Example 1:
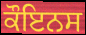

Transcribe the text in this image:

ਕੌਇਨਸ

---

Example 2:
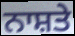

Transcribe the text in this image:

ਨਾਸ਼ਤੇ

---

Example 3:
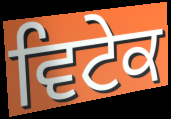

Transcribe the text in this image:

ਵਿਟੇਕ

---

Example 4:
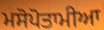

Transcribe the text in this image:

ਮਸੋਪੋਤਾਮੀਆ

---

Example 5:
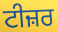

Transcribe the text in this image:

ਟੀਜ਼ਰ